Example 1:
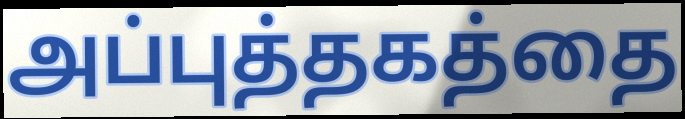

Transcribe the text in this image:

அப்புத்தகத்தை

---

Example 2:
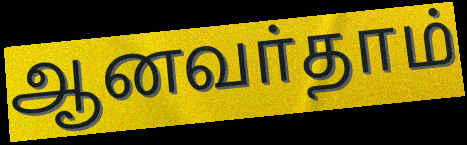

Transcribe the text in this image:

ஆனவர்தாம்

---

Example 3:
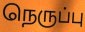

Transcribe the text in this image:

நெருப்பு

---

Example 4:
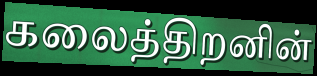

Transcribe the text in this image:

கலைத்திறனின்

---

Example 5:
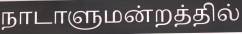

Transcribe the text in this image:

நாடாளுமன்றத்தில்